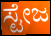
ಸ್ಟೇಜ